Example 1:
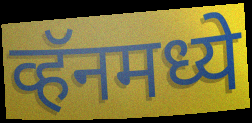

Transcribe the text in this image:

व्हॅनमध्ये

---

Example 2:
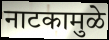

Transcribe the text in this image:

नाटकामुळे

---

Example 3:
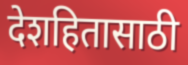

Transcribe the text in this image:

देशहितासाठी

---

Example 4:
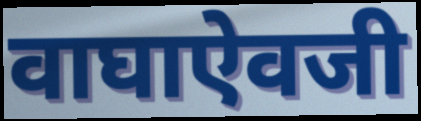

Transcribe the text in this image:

वाघाऐवजी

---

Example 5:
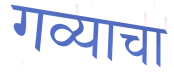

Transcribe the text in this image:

गव्याचा